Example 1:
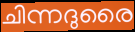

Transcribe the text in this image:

ചിന്നദുരൈ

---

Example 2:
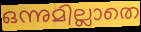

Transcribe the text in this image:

ഒന്നുമില്ലാതെ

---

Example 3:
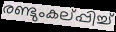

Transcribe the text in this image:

രണ്ടുംകല്പ്പിച്ച്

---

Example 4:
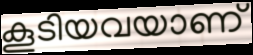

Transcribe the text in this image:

കൂടിയവയാണ്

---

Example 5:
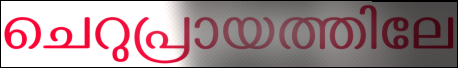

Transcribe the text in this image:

ചെറുപ്രായത്തിലേ